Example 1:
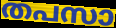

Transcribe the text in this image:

തപസാ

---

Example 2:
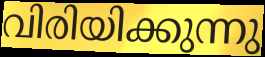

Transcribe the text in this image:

വിരിയിക്കുന്നു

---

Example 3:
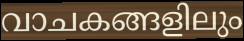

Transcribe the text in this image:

വാചകങ്ങളിലും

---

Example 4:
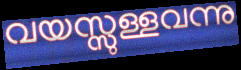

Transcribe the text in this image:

വയസ്സുള്ളവന്നു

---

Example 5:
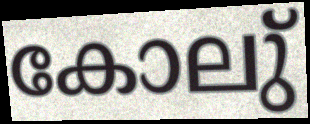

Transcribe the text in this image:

കോലു്